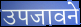
उपजावने